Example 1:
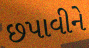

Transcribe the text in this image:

છપાવીને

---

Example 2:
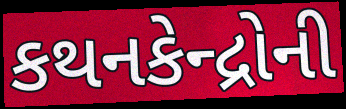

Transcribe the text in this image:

કથનકેન્દ્રોની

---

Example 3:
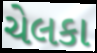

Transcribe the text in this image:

ચેલકા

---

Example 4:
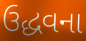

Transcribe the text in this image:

ઉદ્ધવના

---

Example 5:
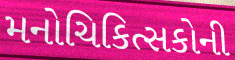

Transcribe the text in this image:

મનોચિકિત્સકોની